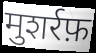
मुशर्रफ़